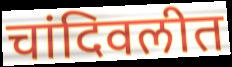
चांदिवलीत